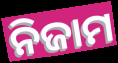
ନିଜାମ